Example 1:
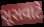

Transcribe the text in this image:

સૂસવાટે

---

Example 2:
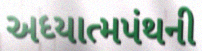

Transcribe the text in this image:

અધ્યાત્મપંથની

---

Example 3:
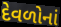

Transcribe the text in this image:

દેવળોનાં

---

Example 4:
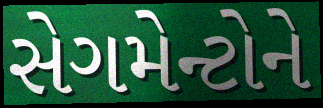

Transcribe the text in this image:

સેગમેન્ટોને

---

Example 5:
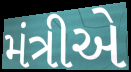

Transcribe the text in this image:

મંત્રીએ